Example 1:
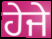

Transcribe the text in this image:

ਹੇਜੇ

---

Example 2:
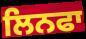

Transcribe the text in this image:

ਲਿਨਫਾ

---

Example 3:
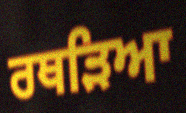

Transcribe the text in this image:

ਰਥੜਿਆ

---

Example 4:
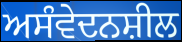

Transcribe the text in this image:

ਅਸੰਵੇਦਨਸ਼ੀਲ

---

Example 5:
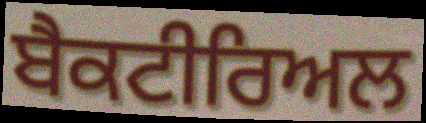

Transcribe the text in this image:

ਬੈਕਟੀਰਿਅਲ